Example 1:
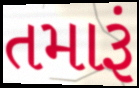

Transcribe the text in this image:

તમારૂં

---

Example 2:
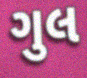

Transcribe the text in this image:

ગુલ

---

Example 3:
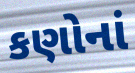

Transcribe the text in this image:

કણોનાં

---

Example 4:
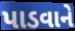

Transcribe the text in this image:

પાડવાને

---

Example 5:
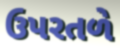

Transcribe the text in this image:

ઉપરતળે